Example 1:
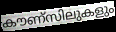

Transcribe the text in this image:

കൗണ്സിലുകളും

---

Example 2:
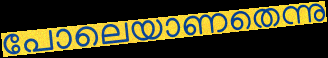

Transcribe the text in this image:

പോലെയാണതെന്നു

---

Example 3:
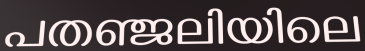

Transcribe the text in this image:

പതഞ്ജലിയിലെ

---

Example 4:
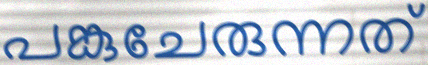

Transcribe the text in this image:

പങ്കുചേരുന്നത്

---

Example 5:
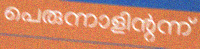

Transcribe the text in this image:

പെരുന്നാളിന്റന്ന്